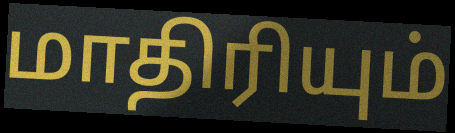
மாதிரியும்